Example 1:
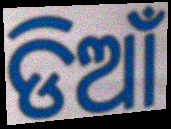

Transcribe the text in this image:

ଡିଆଁ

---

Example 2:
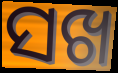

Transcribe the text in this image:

ସଖ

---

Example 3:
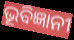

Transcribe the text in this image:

ଭୂବିଜ୍ଞାନୀ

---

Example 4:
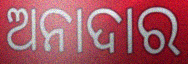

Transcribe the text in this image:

ଅନାଦାର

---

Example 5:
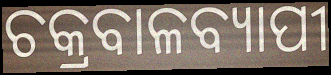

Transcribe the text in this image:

ଚକ୍ରବାଳବ୍ୟାପୀ